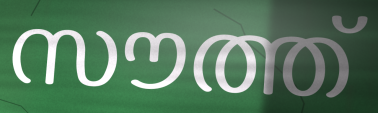
സൗത്ത്